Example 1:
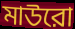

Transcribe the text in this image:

মাউরো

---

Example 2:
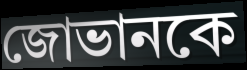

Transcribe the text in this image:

জোভানকে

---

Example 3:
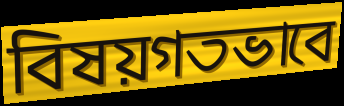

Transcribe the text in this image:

বিষয়গতভাবে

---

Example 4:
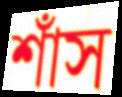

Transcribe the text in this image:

শাঁস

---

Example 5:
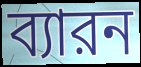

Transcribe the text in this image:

ব্যারন